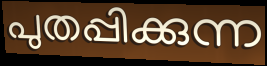
പുതപ്പിക്കുന്ന